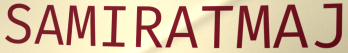
SAMIRATMAJ